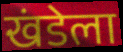
खंडेला